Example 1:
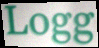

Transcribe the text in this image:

Logg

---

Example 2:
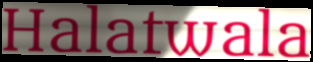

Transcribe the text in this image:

Halatwala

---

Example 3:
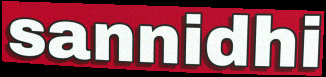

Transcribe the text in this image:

sannidhi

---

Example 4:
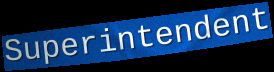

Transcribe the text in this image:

Superintendent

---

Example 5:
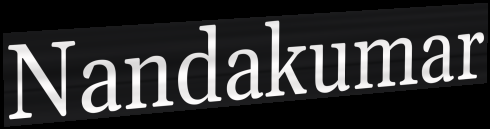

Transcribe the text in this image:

Nandakumar